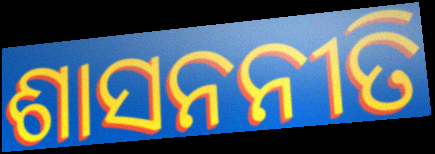
ଶାସନନୀତି